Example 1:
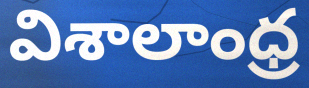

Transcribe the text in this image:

విశాలాంధ్ర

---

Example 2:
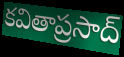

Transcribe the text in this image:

కవితాప్రసాద్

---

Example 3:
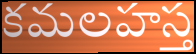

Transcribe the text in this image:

కమలహస్త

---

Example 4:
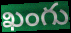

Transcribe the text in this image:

ఖంగు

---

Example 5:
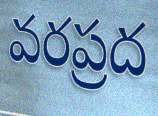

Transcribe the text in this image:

వరప్రద